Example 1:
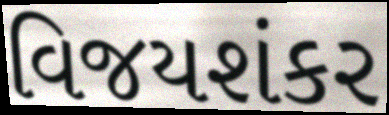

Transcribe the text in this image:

વિજયશંકર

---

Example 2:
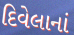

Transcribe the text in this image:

દિવેલાનાં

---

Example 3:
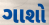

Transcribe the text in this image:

ગાશો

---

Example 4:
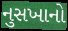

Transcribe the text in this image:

નુસખાનો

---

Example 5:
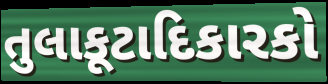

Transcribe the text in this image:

તુલાકૂટાદિકારકો